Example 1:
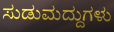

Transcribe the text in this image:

ಸುಡುಮದ್ದುಗಳು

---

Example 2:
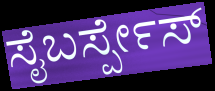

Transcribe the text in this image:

ಸೈಬರ್ಸ್ಪೇಸ್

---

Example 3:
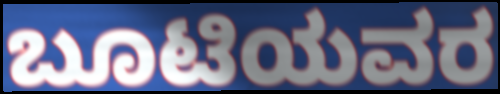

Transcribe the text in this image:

ಬೂಟಿಯವರ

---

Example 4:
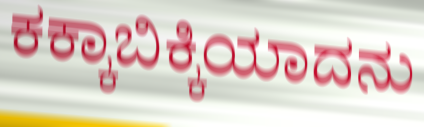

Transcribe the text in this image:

ಕಕ್ಕಾಬಿಕ್ಕಿಯಾದನು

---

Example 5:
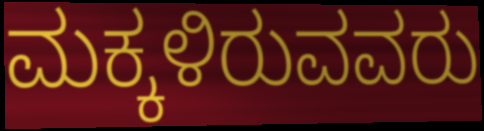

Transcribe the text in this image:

ಮಕ್ಕಳಿರುವವರು